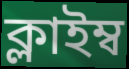
ক্লাইম্ব